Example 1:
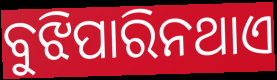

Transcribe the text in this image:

ବୁଝିପାରିନଥାଏ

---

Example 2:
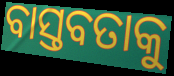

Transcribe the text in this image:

ବାସ୍ତବତାକୁ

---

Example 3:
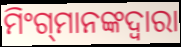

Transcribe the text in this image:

ମିଂଗ୍‍ମାନଙ୍କଦ୍ୱାରା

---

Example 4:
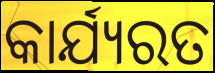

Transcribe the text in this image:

କାର୍ଯ୍ୟରତ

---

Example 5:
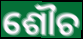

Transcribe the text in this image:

ଶୌଚ